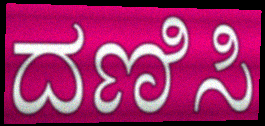
ದಣಿಸಿ